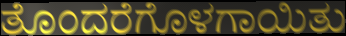
ತೊಂದರೆಗೊಳಗಾಯಿತು